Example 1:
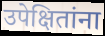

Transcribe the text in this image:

उपेक्षितांना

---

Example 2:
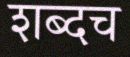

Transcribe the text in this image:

शब्दच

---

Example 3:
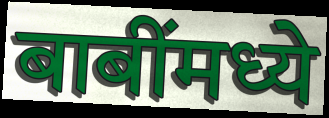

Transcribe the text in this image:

बाबींमध्ये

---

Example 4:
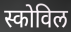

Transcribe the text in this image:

स्कोविल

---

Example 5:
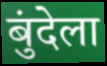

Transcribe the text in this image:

बुंदेला